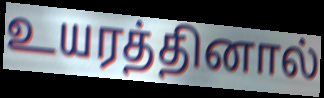
உயரத்தினால்